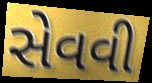
સેવવી